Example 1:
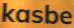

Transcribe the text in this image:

kasbe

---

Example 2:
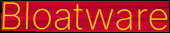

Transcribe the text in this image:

Bloatware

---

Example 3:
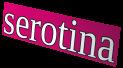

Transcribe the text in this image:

serotina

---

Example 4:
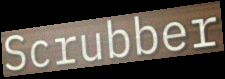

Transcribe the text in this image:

Scrubber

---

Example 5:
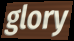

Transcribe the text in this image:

glory